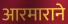
आरमाराने